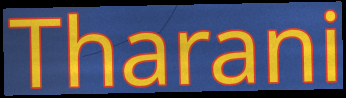
Tharani